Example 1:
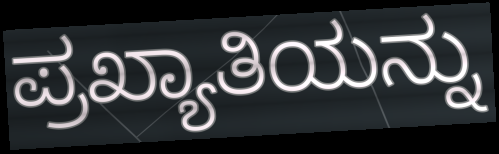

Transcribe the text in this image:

ಪ್ರಖ್ಯಾತಿಯನ್ನು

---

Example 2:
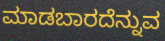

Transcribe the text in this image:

ಮಾಡಬಾರದೆನ್ನುವ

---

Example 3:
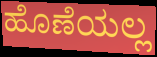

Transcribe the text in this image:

ಹೊಣೆಯಲ್ಲ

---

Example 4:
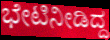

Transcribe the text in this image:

ಭೇಟಿನೀಡಿದ್ದ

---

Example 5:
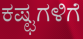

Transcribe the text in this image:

ಕಷ್ಟಗಳಿಗೆ